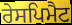
ਰੇਸਪਿਮੈਟ